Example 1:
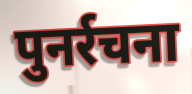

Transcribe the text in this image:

पुनर्रचना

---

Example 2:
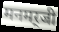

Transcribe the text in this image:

मनमर्जी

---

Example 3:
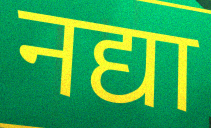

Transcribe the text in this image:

नद्या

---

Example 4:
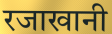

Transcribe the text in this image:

रजाखानी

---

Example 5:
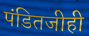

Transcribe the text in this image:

पंडितजीही